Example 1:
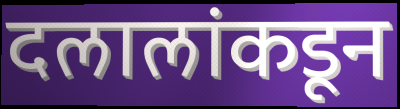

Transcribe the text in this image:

दलालांकडून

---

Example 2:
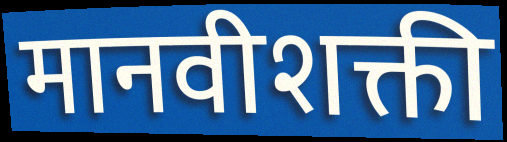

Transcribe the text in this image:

मानवीशक्ती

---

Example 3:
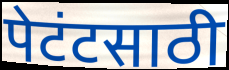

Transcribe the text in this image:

पेटंटसाठी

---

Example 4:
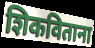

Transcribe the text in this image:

शिकविताना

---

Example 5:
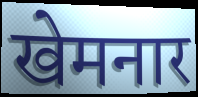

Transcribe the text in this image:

खेमनार